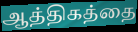
ஆத்திகத்தை